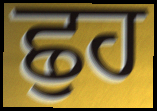
ਛੁਹ